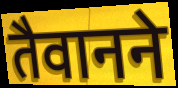
तैवानने